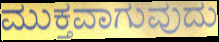
ಮುಕ್ತವಾಗುವುದು